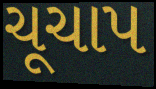
ચૂચાપ